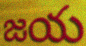
జయ